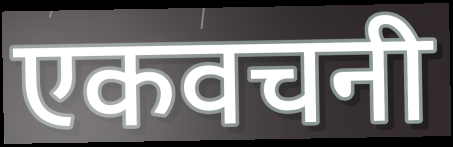
एकवचनी